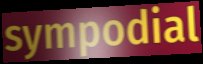
sympodial